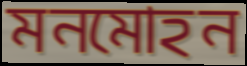
মনমোহন